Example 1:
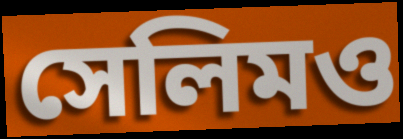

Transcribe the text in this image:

সেলিমও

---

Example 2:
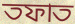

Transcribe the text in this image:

তফাত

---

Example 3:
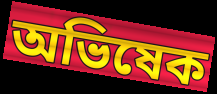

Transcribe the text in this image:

অভিষেক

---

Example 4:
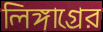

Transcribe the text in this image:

লিঙ্গাগ্রের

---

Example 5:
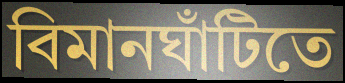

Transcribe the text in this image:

বিমানঘাঁটিতে